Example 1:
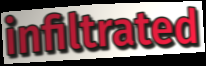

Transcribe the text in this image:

infiltrated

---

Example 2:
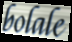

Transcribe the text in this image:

bolale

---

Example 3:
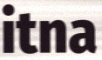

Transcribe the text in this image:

itna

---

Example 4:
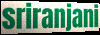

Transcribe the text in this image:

sriranjani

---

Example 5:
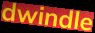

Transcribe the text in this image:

dwindle